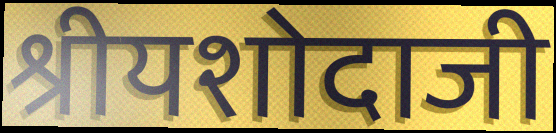
श्रीयशोदाजी